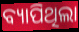
ବ୍ୟାପିଥିଲା